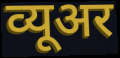
व्यूअर